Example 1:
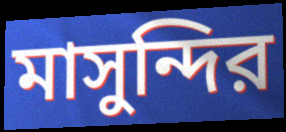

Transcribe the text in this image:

মাসুন্দির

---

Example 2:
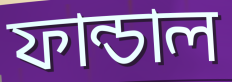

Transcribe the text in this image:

ফান্ডাল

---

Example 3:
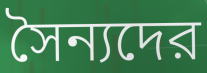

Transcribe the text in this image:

সৈন্যদের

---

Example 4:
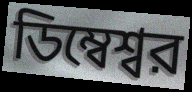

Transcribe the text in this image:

ডিম্বেশ্বর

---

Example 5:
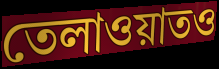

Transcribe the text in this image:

তেলাওয়াতও